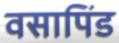
वसापिंड